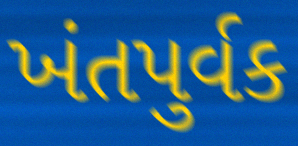
ખંતપુર્વક